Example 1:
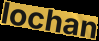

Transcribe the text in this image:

lochan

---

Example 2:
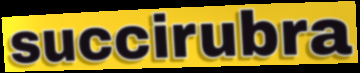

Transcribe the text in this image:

succirubra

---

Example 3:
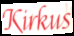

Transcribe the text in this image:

Kirkus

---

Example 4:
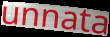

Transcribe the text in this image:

unnata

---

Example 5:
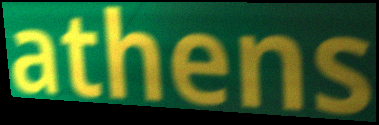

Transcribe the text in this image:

athens